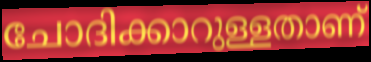
ചോദിക്കാറുള്ളതാണ്